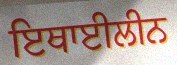
ਇਥਾਈਲੀਨ